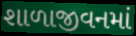
શાળાજીવનમાં